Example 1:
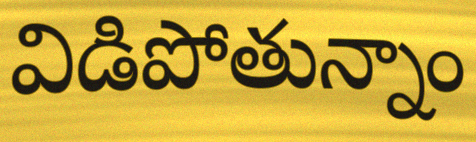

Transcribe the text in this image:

విడిపోతున్నాం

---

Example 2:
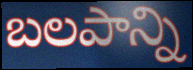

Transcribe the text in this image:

బలపాన్ని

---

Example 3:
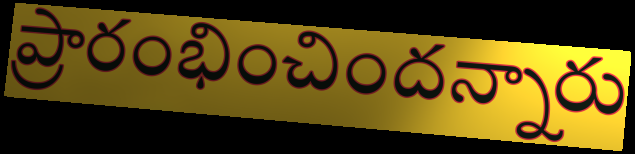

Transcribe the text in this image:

ప్రారంభించిందన్నారు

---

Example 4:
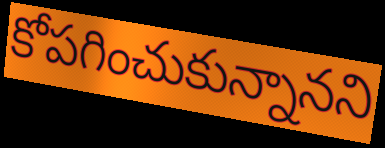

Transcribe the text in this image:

కోపగించుకున్నానని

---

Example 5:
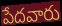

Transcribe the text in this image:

పేదవారు